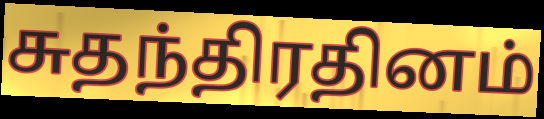
சுதந்திரதினம்